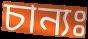
চান্যঃ